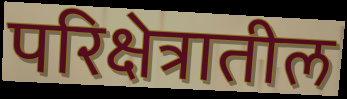
परिक्षेत्रातील